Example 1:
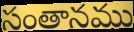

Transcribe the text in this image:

సంతానము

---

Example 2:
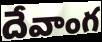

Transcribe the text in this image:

దేవాంగ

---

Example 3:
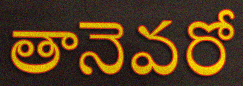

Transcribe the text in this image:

తానెవరో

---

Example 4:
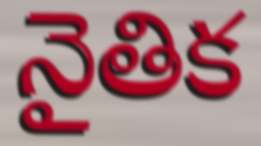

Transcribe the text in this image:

నైతిక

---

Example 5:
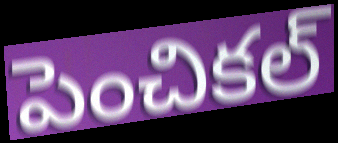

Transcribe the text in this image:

పెంచికల్